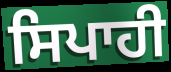
ਸਿਪਾਹੀ